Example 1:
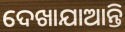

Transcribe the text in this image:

ଦେଖାଯାଆନ୍ତି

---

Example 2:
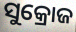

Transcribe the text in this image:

ସୁକ୍ରୋଜ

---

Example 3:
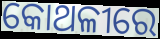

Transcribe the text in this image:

କୋଥଳୀରେ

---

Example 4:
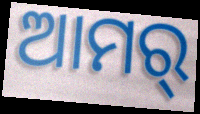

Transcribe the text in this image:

ଆମର୍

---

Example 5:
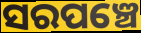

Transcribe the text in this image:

ସରପଞ୍ଚେ